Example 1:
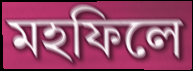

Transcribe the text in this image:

মহফিলে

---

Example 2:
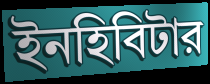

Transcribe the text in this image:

ইনহিবিটার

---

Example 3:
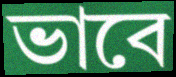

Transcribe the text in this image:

ভাবে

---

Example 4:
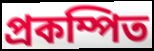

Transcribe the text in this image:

প্রকম্পিত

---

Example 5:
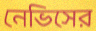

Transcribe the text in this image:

নেভিসের